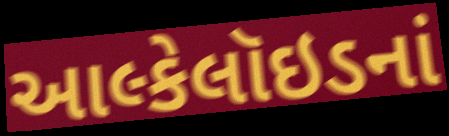
આલ્કેલૉઇડનાં